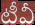
టీవీ